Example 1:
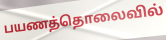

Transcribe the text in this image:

பயணத்தொலைவில்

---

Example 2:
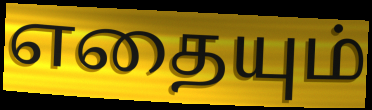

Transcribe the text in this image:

எதையும்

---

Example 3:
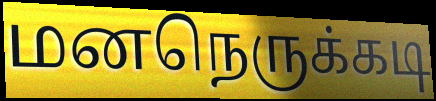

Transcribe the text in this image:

மனநெருக்கடி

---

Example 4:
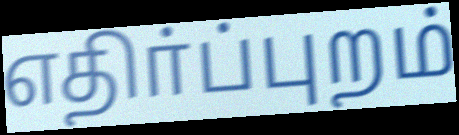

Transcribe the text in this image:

எதிர்ப்புறம்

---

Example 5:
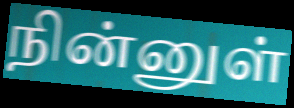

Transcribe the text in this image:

நின்னுள்